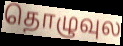
தொழுவுல